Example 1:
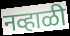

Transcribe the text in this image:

नव्हाळी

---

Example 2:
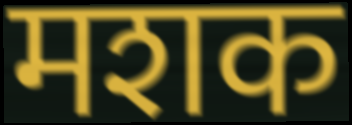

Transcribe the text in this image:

मशक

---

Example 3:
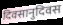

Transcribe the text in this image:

दिवसानुदिवस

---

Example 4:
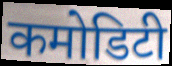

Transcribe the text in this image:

कमोडिटी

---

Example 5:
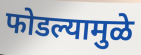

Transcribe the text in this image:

फोडल्यामुळे